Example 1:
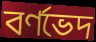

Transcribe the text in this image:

বর্ণভেদ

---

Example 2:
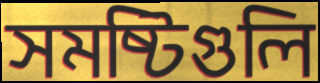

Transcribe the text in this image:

সমষ্টিগুলি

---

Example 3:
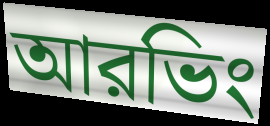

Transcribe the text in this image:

আরভিং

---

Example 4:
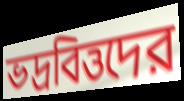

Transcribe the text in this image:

ভদ্রবিত্তদের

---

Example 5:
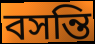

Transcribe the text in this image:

বসন্তি